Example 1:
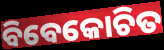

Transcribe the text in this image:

ବିବେକୋଚିତ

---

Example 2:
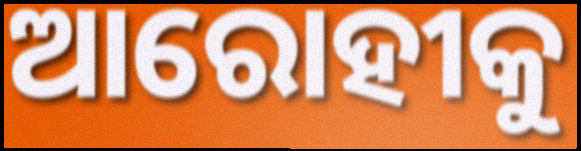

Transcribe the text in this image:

ଆରୋହୀକୁ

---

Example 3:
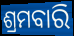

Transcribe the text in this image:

ଶ୍ରମବାରି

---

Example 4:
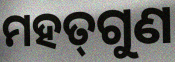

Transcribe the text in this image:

ମହତ୍‍ଗୁଣ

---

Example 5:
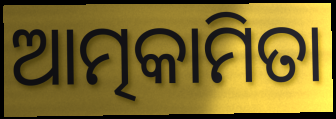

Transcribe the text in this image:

ଆତ୍ମକାମିତା